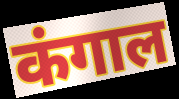
कंगाल